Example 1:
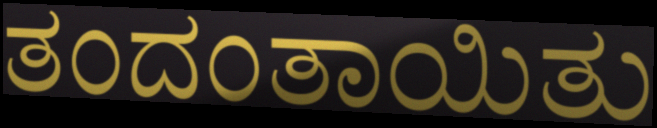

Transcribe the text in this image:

ತಂದಂತಾಯಿತು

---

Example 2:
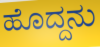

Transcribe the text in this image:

ಹೊದ್ದನು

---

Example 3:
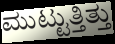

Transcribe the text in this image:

ಮುಟ್ಟುತ್ತಿತ್ತು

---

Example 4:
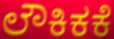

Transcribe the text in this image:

ಲೌಕಿಕಕೆ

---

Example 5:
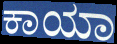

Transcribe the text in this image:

ಕಾಯಾ